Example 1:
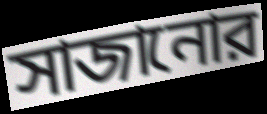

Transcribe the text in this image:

সাজানোর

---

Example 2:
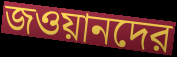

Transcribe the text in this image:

জওয়ানদের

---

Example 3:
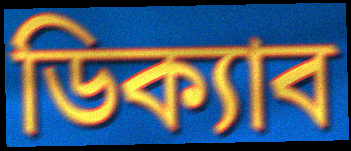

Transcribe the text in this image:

ডিক্যাব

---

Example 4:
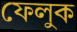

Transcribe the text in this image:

ফেলুক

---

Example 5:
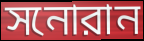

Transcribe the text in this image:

সনোরান